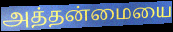
அத்தன்மையை